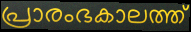
പ്രാരംഭകാലത്ത്